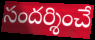
సందర్శించే